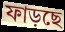
ফাড়ছে